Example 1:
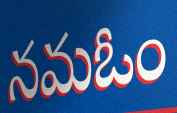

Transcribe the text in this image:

నమఓం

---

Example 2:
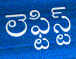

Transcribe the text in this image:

లెఫ్టిస్ట్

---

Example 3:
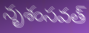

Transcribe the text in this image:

నృశంసవత్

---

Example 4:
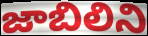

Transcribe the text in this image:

జాబిలిని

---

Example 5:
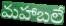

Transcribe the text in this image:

మహాబలే